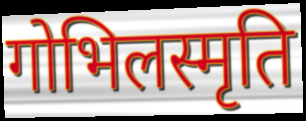
गोभिलस्मृति